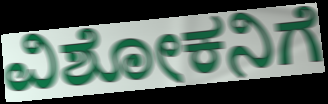
ವಿಶೋಕನಿಗೆ